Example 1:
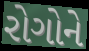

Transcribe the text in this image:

રોગોને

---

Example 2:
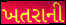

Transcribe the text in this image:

ખતરાની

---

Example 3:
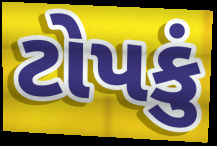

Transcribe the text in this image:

ટોપકું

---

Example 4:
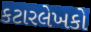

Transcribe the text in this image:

કટારલેખકો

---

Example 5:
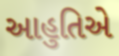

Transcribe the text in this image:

આહુતિએ